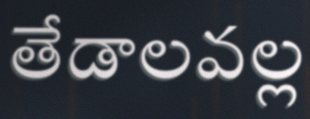
తేడాలవల్ల